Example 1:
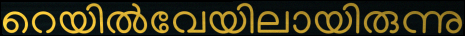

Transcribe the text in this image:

റെയിൽവേയിലായിരുന്നു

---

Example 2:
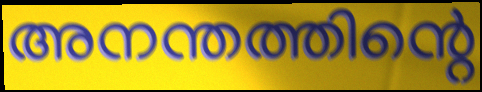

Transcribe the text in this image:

അനന്തത്തിന്റെ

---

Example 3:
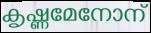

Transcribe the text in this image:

കൃഷ്ണമേനോന്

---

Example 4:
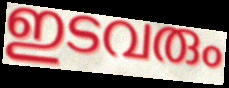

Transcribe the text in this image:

ഇടവരും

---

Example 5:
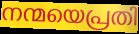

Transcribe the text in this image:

നന്മയെപ്രതി